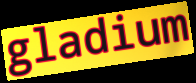
gladium